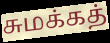
சுமக்கத்